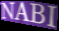
NABI